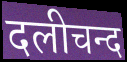
दलीचन्द